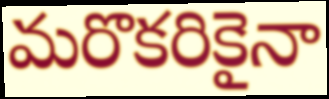
మరొకరికైనా